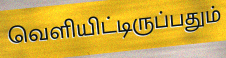
வெளியிட்டிருப்பதும்